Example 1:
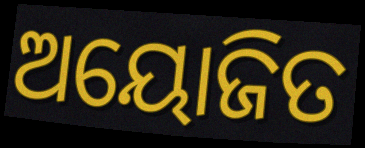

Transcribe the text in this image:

ଅୟୋଜିତ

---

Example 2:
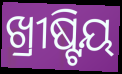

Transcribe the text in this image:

ଖ୍ରୀଷ୍ଟିୟ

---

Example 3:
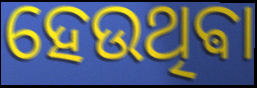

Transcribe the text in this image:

ହେଉଥିଵା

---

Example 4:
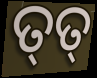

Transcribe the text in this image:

ତ୍‌ତ୍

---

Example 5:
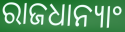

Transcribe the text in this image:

ରାଜଧାନ୍ୟାଂ